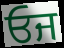
ਓਜ